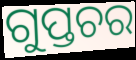
ଗୁପ୍ତଚର